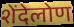
शेंदेलोण